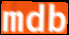
mdb